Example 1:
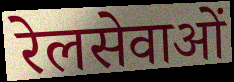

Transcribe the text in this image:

रेलसेवाओं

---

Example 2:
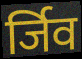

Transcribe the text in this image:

र्जिव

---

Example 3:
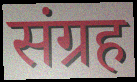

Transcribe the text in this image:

संग्रह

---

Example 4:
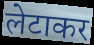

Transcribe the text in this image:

लेटाकर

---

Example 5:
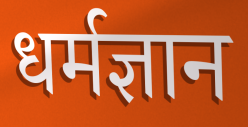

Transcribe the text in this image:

धर्मज्ञान